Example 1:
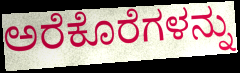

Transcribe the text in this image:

ಅರೆಕೊರೆಗಳನ್ನು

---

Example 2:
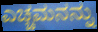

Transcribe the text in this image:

ಎಚ್ಚಮನನ್ನು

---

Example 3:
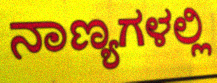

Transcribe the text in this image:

ನಾಣ್ಯಗಳಲ್ಲಿ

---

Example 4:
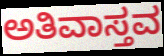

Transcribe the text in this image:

ಅತಿವಾಸ್ತವ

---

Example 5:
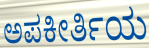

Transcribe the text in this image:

ಅಪಕೀರ್ತಿಯ